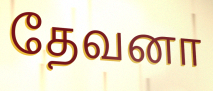
தேவனா